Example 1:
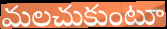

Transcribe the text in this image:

మలచుకుంటూ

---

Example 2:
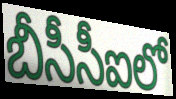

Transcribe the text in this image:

బీసీసీఐలో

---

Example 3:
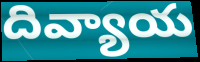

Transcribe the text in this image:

దివ్యాయ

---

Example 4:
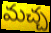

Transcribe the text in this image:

మచ్చ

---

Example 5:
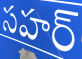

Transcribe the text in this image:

సహర్